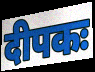
दीपकः